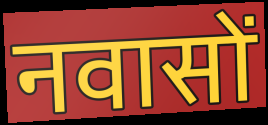
नवासों